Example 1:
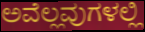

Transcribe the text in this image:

ಅವೆಲ್ಲವುಗಳಲ್ಲಿ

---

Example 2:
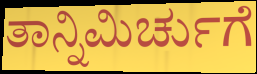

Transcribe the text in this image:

ತಾನ್ನಿಮಿರ್ಚುಗೆ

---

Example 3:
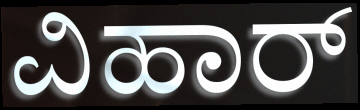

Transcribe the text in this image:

ವಿಹಾರ್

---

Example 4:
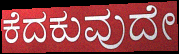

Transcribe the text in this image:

ಕೆದಕುವುದೇ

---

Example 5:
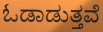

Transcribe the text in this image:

ಓಡಾಡುತ್ತವೆ